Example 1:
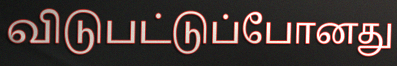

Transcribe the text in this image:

விடுபட்டுப்போனது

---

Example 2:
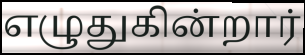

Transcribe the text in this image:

எழுதுகின்றார்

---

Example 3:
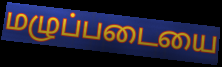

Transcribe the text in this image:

மழுப்படையை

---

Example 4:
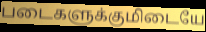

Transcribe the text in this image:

படைகளுக்குமிடையே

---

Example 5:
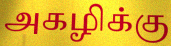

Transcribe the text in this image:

அகழிக்கு